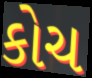
કોચ